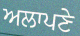
ਅਲਾਪਣੇ